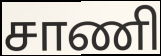
சாணி